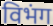
विभंग